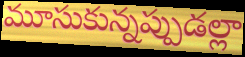
మూసుకున్నప్పుడల్లా